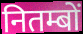
नितम्बों